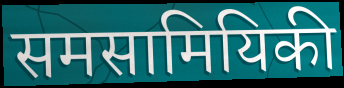
समसामियिकी